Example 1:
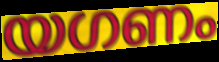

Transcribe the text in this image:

യഗണം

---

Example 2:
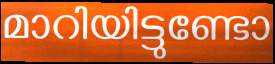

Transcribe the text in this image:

മാറിയിട്ടുണ്ടോ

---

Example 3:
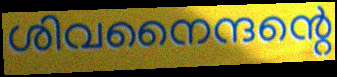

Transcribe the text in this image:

ശിവനൈന്ദന്റെ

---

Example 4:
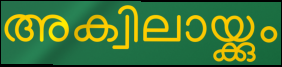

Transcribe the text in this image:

അക്വിലായ്ക്കും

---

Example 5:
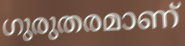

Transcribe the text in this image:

ഗുരുതരമാണ്